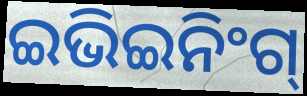
ଇଭିଇନିଂଗ୍